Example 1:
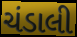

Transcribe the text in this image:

ચંડાલી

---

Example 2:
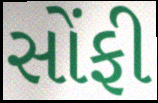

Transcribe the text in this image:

સોંફી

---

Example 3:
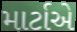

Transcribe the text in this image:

માર્ટાએ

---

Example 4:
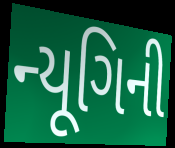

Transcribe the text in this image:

ન્યૂગિની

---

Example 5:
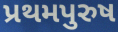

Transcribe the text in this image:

પ્રથમપુરુષ